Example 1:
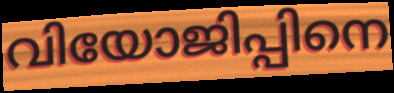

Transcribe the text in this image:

വിയോജിപ്പിനെ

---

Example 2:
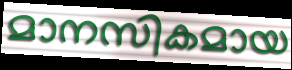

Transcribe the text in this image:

മാനസികമായ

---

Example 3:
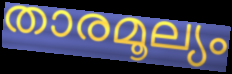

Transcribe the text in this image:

താരമൂല്യം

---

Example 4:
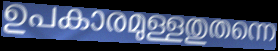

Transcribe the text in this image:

ഉപകാരമുള്ളതുതന്നെ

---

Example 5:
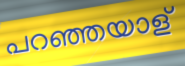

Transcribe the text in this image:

പറഞ്ഞയാള്